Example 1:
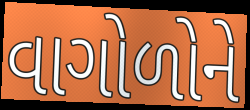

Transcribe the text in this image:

વાગોળોને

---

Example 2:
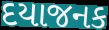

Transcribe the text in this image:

દયાજનક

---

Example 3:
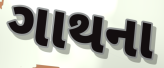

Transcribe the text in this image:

ગાથના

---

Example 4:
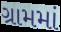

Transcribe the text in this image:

ગ્રામમાં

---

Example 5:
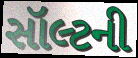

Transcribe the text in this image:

સૉલ્ટની